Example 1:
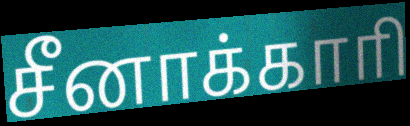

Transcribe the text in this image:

சீனாக்காரி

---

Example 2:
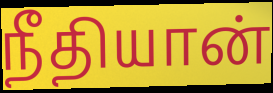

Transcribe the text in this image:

நீதியான்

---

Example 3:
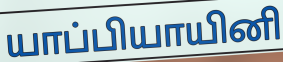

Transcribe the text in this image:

யாப்பியாயினி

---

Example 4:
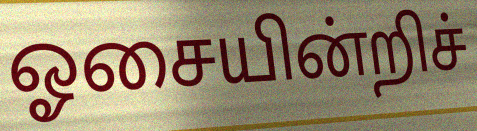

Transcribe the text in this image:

ஓசையின்றிச்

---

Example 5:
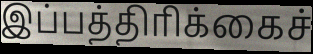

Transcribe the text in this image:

இப்பத்திரிக்கைச்